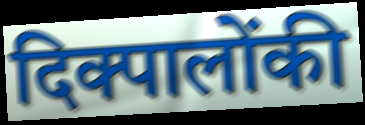
दिक्पालोंकी